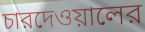
চারদেওয়ালের